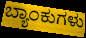
ಬ್ಯಾಂಕುಗಳು